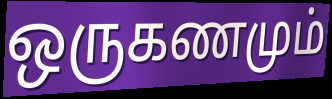
ஒருகணமும்